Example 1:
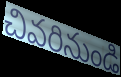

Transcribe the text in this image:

చివరినుండి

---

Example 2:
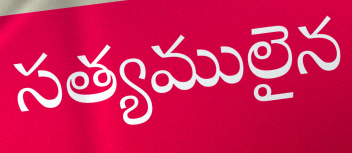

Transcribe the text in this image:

సత్యములైన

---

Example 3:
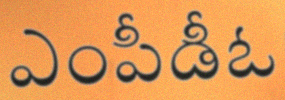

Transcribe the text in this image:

ఎంపీడీఓ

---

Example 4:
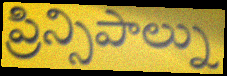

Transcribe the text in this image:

ప్రిన్సిపాల్ను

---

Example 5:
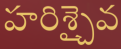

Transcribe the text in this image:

హరిశ్చైవ